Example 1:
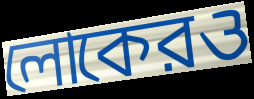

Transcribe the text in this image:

লোকেরও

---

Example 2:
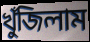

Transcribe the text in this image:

খুঁজিলাম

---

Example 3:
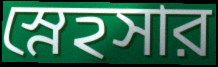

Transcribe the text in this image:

স্নেহসার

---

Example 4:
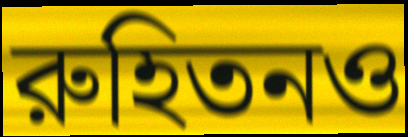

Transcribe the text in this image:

রুহিতনও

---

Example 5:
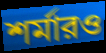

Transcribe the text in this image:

শর্মারও